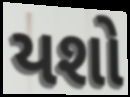
યશો